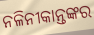
ନଳିନୀକାନ୍ତଙ୍କର